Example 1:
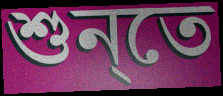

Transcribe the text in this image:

শুন্‌তে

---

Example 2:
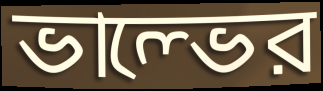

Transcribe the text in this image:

ভাল্ভের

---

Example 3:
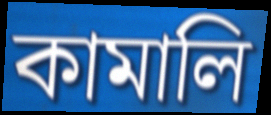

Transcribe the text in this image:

কামালি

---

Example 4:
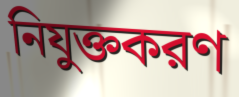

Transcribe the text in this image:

নিযুক্তকরণ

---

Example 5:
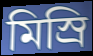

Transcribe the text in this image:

মিস্রি